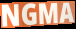
NGMA